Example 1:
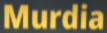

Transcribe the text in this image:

Murdia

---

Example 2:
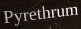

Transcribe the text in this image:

Pyrethrum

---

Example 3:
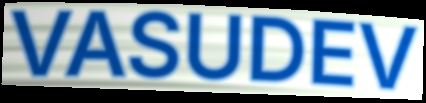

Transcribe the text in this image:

VASUDEV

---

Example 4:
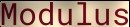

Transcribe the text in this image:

Modulus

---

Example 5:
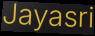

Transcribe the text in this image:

Jayasri